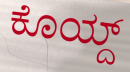
ಕೊಯ್ದ್